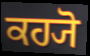
ਕਹ੍ਯੋ